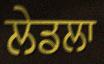
ਲੇਡਲਾ